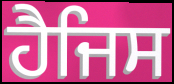
ਹੈਜਿਸ